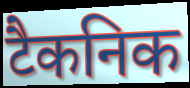
टैकनिक